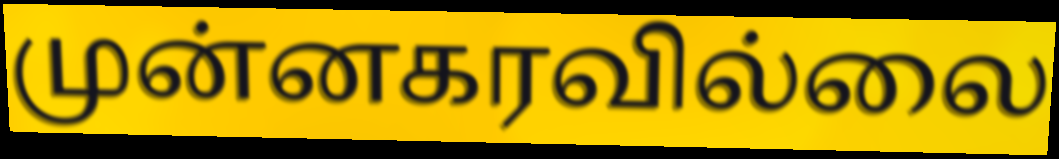
முன்னகரவில்லை